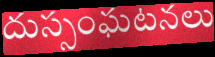
దుస్సంఘటనలు